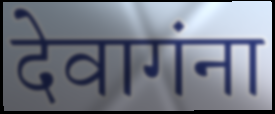
देवागंना